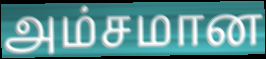
அம்சமான